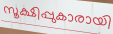
സൂക്ഷിപ്പുകാരായി